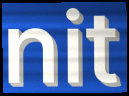
nit